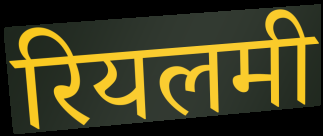
रियलमी